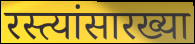
रस्त्यांसारख्या